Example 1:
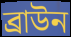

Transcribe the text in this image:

ব্রাউন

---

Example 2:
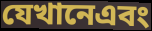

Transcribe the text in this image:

যেখানেএবং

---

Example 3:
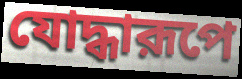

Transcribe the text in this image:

যোদ্ধারূপে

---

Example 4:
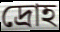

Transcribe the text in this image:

দ্রোহ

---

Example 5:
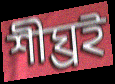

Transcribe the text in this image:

শীঘ্রই